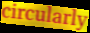
circularly